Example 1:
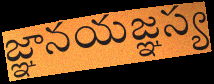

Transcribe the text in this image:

జ్ఞానయజ్ఞస్య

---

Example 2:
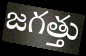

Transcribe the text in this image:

జగత్తు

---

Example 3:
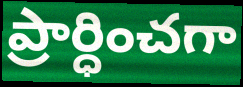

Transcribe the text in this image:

ప్రార్ధించగా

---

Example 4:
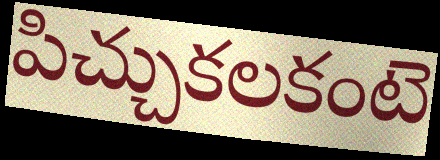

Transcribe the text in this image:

పిచ్చుకలకంటె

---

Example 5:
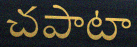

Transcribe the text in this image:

చపాటా